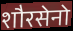
शौरसेनो